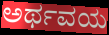
ಅರ್ಥವಯ